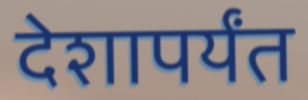
देशापर्यंत